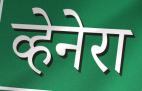
व्हेनेरा